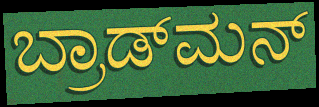
ಬ್ರಾಡ್‌ಮನ್